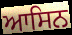
ਆਸਿਨ